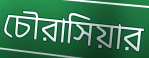
চৌরাসিয়ার